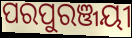
ପରପୁରଞ୍ଜୟୀ